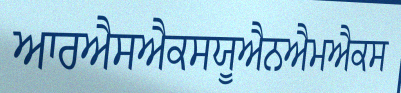
ਆਰਐਸਐਕਸਯੂਐਨਐਮਐਕਸ